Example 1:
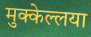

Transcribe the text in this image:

मुक्केल्लया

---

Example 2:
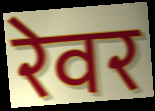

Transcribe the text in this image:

रेवर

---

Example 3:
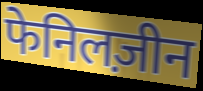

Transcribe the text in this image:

फेनिलज़ीन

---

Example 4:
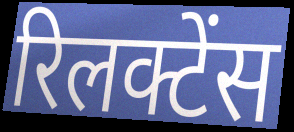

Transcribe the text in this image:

रिलक्टेंस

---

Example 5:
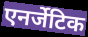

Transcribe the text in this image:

एनर्जेटिक